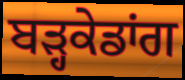
ਬੜ੍ਹਕੇਡਾਂਗ